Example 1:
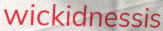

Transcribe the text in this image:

wickidnessis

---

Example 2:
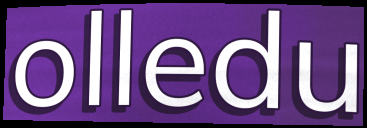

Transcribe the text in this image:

olledu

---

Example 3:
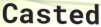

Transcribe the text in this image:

Casted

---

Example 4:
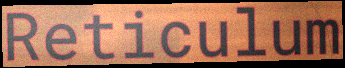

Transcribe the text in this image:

Reticulum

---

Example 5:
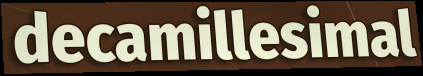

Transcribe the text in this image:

decamillesimal